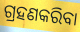
ଗ୍ରହଣକରିବା